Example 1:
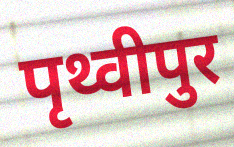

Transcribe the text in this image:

पृथ्वीपुर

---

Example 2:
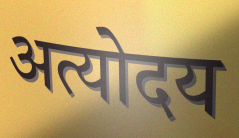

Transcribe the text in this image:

अत्योदय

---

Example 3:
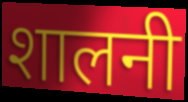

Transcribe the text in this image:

शालनी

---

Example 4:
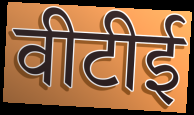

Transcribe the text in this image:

वीटीई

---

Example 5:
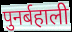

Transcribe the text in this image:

पुनर्बहाली